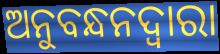
ଅନୁବନ୍ଧନଦ୍ୱାରା